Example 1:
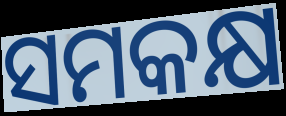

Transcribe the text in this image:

ସମକକ୍ଷ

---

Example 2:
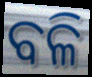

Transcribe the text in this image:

ବଳି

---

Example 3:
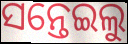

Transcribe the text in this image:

ସନ୍ତେଇଲୁ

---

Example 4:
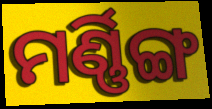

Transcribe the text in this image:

ମର୍ଣ୍ଣିଙ୍ଗ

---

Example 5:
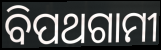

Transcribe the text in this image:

ବିପଥଗାମୀ